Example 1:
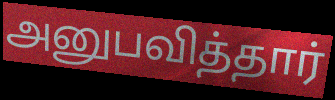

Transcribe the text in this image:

அனுபவித்தார்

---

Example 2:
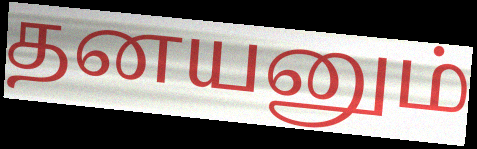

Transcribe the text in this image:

தனயனும்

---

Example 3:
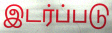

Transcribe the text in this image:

இடர்ப்படு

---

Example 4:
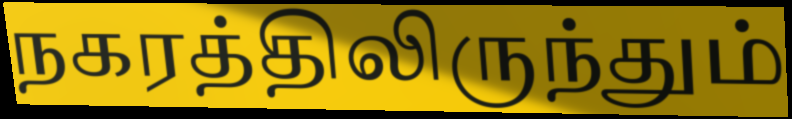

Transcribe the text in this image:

நகரத்திலிருந்தும்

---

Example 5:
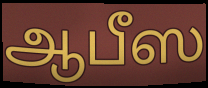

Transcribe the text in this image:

ஆபீஸ